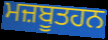
ਮਜ਼ਬੂਤਹਨ